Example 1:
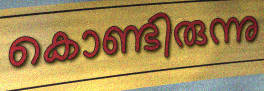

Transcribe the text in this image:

കൊണ്ടിരുന്നു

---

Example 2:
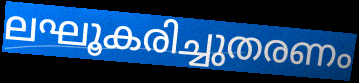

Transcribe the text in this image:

ലഘൂകരിച്ചുതരണം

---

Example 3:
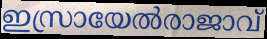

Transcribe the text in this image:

ഇസ്രായേൽരാജാവ്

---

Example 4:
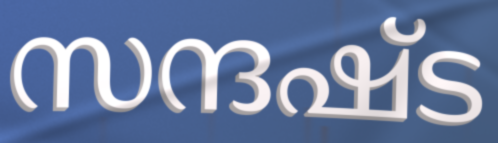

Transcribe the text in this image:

സന്ദഷ്ട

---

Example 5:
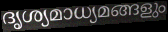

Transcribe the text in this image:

ദൃശ്യമാധ്യമങ്ങളും